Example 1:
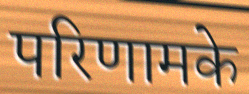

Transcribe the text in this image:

परिणामके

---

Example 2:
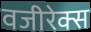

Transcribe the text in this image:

वजीरेक्स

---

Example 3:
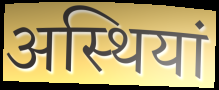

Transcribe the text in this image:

अस्थियां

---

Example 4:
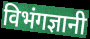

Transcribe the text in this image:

विभंगज्ञानी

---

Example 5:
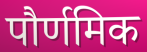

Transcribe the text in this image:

पौर्णमिक